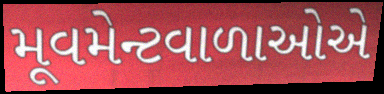
મૂવમેન્ટવાળાઓએ